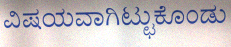
ವಿಷಯವಾಗಿಟ್ಟುಕೊಂಡು